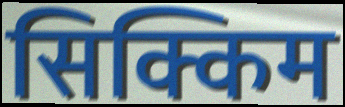
सिक्किम